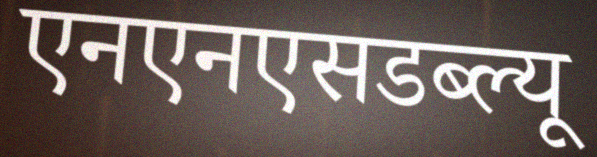
एनएनएसडब्ल्यू